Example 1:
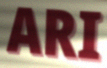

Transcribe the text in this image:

ARI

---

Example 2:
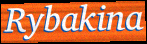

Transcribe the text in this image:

Rybakina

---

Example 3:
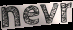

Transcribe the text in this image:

nevr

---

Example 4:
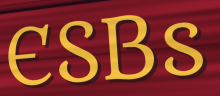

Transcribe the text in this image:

ESBs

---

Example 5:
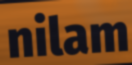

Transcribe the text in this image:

nilam